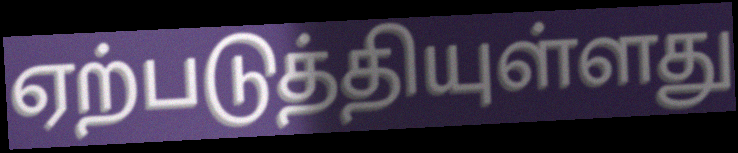
ஏற்படுத்தியுள்ளது